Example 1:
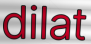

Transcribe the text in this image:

dilat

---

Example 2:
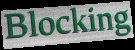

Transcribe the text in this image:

Blocking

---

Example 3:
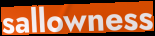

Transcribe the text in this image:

sallowness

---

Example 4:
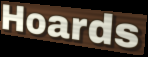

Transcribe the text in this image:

Hoards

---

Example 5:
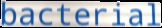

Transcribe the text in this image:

bacterial